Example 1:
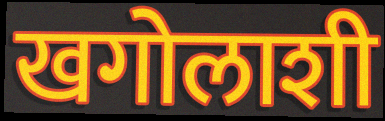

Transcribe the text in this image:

खगोलाशी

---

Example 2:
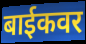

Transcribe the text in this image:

बाईकवर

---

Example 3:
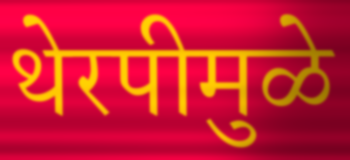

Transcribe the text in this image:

थेरपीमुळे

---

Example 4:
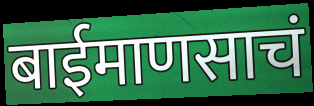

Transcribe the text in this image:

बाईमाणसाचं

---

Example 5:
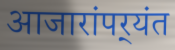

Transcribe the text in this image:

आजारांपर्यंत